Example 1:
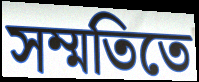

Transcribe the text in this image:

সম্মতিতে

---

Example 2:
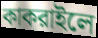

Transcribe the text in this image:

কাকরাইলে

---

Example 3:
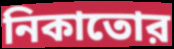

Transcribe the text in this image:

নিকাতোর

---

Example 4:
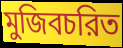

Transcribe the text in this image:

মুজিবচরিত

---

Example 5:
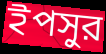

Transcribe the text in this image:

ইপসুর